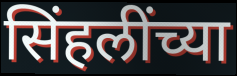
सिंहलींच्या